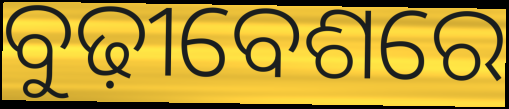
ବୁଢ଼ୀବେଶରେ